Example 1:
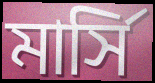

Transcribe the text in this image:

মার্সি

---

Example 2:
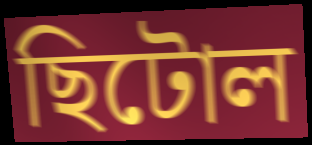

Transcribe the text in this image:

ছিটোল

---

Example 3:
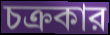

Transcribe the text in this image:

চক্রকার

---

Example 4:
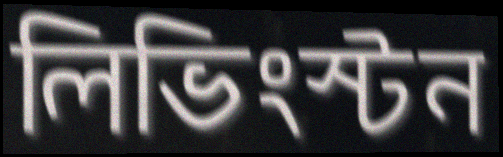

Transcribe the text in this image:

লিভিংস্টন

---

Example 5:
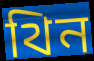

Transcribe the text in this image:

থিন